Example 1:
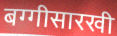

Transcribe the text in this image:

बग्गीसारखी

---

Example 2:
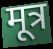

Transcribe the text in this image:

मूत्र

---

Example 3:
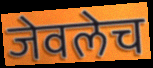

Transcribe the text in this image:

जेवलेच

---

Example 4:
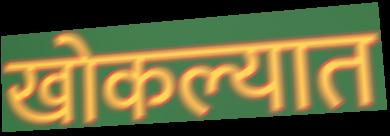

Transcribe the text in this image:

खोकल्यात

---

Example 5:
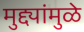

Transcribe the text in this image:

मुद्द्यांमुळे